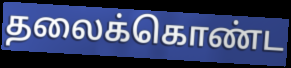
தலைக்கொண்ட